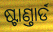
ଷ୍ଟାଣ୍ତାର୍ଡ